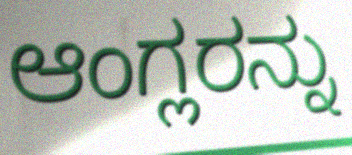
ಆಂಗ್ಲರನ್ನು